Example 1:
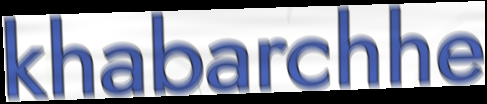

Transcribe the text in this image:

khabarchhe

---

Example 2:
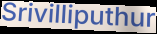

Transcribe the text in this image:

Srivilliputhur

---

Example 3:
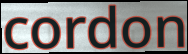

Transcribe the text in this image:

cordon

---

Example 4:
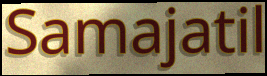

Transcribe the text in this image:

Samajatil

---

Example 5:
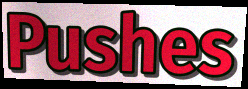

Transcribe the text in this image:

Pushes